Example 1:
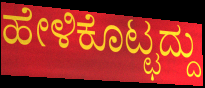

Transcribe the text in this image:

ಹೇಳಿಕೊಟ್ಟದ್ದು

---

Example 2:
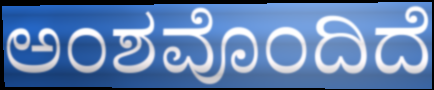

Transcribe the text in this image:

ಅಂಶವೊಂದಿದೆ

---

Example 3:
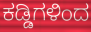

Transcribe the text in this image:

ಕಡ್ಡಿಗಳಿಂದ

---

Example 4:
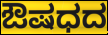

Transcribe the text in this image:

ಔಷಧದ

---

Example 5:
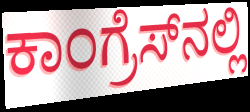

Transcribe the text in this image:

ಕಾಂಗ್ರೆಸ್‍ನಲ್ಲಿ